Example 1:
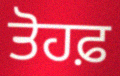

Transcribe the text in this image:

ਤੋਹਫ਼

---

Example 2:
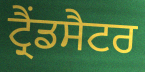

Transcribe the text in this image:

ਟ੍ਰੈਂਡਸੈਟਰ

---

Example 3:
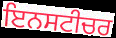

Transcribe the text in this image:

ਇਨਸਟੀਚਰ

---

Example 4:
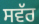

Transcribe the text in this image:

ਸਵੱਰ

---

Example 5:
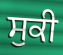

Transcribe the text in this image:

ਸੁਕੀ